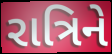
રાત્રિને